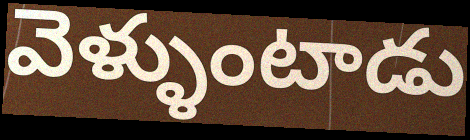
వెళ్ళుంటాడు